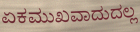
ಏಕಮುಖವಾದುದಲ್ಲ